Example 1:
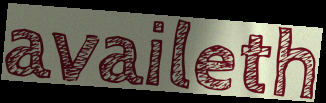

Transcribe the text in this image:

availeth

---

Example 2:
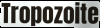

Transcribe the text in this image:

Tropozoite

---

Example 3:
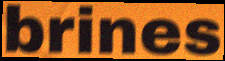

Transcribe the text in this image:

brines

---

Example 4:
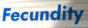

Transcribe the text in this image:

Fecundity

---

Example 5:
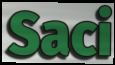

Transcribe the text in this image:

Saci